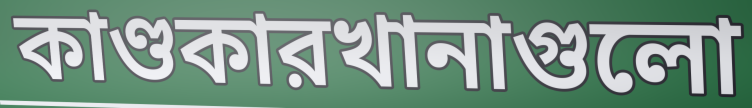
কাণ্ডকারখানাগুলো